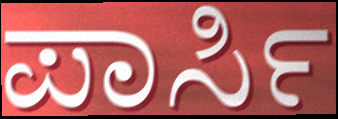
ಪಾರ್ಸಿ